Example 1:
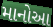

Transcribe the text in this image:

માનોઆ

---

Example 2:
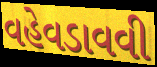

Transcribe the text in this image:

વહેવડાવવી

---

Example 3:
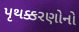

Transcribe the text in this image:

પૃથક્કરણોનો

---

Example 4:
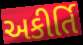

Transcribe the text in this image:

અકીર્તિ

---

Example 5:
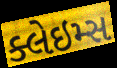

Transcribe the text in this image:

ક્લેઇમ્સ